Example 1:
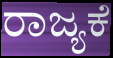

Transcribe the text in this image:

ರಾಜ್ಯಕೆ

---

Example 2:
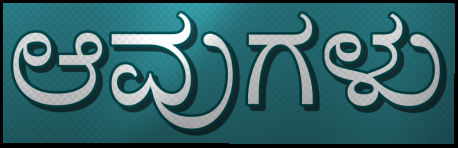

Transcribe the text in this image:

ಆವುಗಳು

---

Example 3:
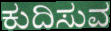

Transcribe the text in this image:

ಕುದಿಸುವ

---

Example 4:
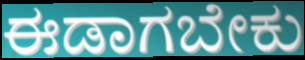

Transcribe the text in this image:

ಈಡಾಗಬೇಕು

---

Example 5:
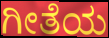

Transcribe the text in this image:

ಗೀತೆಯ